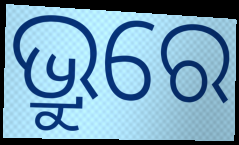
ଭ୍ରୁରେ